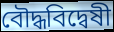
বৌদ্ধবিদ্বেষী